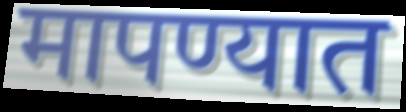
मापण्यात